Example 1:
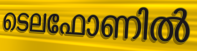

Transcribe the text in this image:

ടെലഫോണിൽ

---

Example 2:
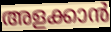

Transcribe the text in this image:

അളക്കാൻ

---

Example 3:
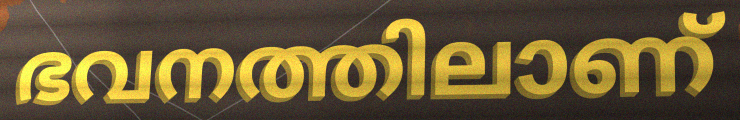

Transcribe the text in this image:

ഭവനത്തിലാണ്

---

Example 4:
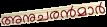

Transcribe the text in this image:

അനുചരൻമാർ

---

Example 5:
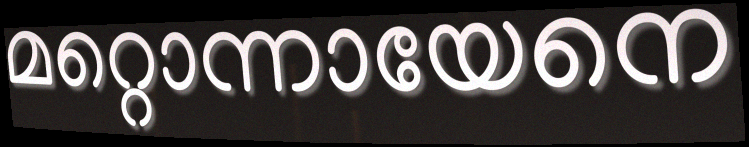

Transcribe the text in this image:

മറ്റൊന്നായേനെ